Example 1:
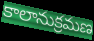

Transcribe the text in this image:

కాలానుక్రమణ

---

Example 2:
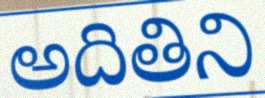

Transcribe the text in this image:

అదితిని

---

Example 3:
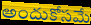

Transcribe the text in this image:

అందుకోసమే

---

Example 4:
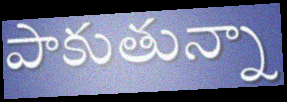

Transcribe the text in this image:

పాకుతున్నా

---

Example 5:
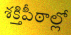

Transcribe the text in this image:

శక్తిపీఠాల్లో